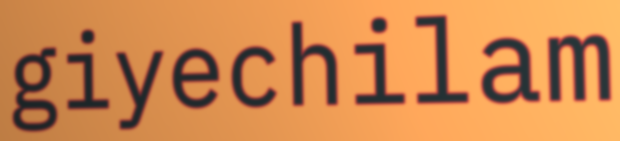
giyechilam